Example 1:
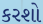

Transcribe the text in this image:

કરશો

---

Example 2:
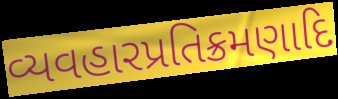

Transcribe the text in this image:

વ્યવહારપ્રતિક્રમણાદિ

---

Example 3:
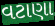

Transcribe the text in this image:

વટાણા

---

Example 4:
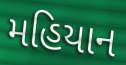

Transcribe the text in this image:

મહિયાન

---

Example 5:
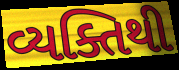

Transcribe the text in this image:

વ્યક્તિથી